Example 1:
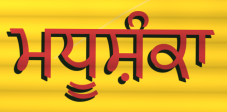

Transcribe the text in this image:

ਮਧੂਸ਼ੰਕਾ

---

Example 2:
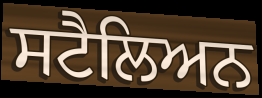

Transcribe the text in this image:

ਸਟੈਲਿਅਨ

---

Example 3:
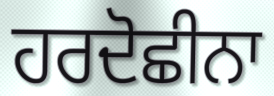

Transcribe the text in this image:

ਹਰਦੋਛੀਨਾ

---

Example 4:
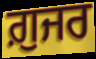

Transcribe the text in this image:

ਗ਼ੁਜਰ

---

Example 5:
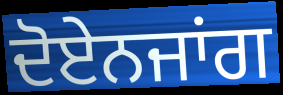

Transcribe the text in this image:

ਦੋਏਨਜਾਂਗ